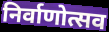
निर्वाणोत्सव